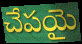
చేపయై